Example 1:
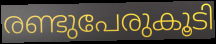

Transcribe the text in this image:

രണ്ടുപേരുകൂടി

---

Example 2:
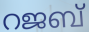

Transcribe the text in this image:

റജബ്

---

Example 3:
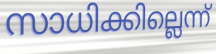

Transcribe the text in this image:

സാധിക്കില്ലെന്ന്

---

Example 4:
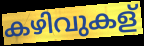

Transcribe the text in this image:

കഴിവുകള്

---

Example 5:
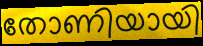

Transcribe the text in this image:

തോണിയായി